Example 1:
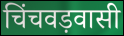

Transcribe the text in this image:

चिंचवड़वासी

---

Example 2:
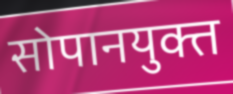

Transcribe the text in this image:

सोपानयुक्त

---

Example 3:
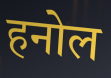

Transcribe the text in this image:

हनोल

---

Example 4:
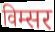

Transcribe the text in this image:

विम्सर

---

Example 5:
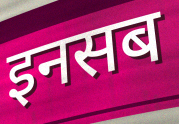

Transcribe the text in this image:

इनसब